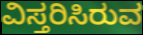
ವಿಸ್ತರಿಸಿರುವ